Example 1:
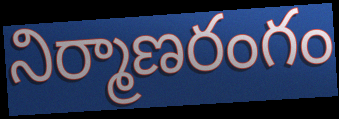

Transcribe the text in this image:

నిర్మాణరంగం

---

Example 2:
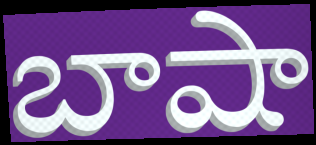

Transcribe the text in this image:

బాషా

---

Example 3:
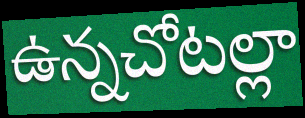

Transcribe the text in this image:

ఉన్నచోటల్లా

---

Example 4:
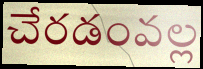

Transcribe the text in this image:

చేరడంవల్ల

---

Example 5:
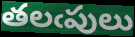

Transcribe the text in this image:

తలఁపులు